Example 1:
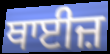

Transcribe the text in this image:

ਥਾਈਜ਼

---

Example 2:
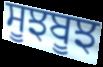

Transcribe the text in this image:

ਸੂਝਬੂਝ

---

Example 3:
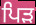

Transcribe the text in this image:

ਪਿੜ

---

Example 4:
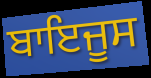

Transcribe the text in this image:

ਬਾਇਜੂਸ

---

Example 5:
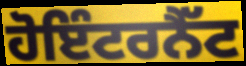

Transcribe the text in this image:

ਹੋਇੰਟਰਨੈੱਟ